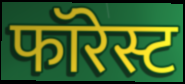
फॉरेस्ट